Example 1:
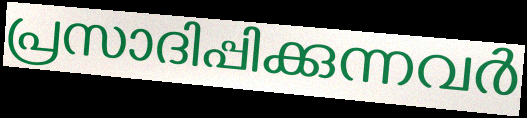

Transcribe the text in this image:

പ്രസാദിപ്പിക്കുന്നവർ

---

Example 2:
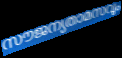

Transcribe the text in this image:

സൗജന്യതാമസവും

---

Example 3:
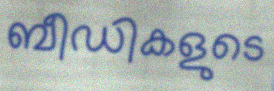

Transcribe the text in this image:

ബീഡികളുടെ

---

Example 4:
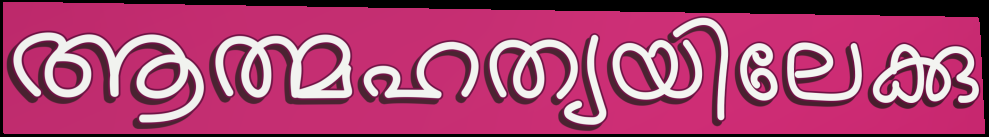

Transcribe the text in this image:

ആത്മഹത്യയിലേക്കു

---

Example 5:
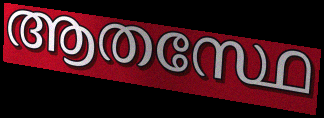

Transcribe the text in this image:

ആതസ്ഥേ